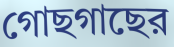
গোছগাছের